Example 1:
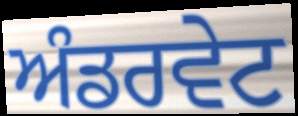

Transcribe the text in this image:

ਅੰਡਰਵੇਟ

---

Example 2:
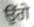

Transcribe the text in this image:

ਉੱਗੇ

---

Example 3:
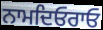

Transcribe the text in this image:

ਨਾਮਦਿਓਰਾਓ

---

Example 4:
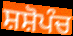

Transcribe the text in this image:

ਸ਼ਸ਼ੋਪੰਚ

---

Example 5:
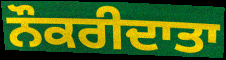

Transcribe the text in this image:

ਨੌਕਰੀਦਾਤਾ